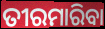
ତୀରମାରିବା